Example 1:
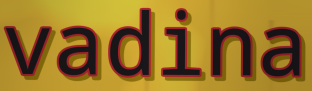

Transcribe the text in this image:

vadina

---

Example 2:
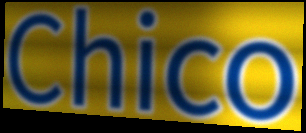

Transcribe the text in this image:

Chico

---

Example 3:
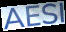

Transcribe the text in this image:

AESI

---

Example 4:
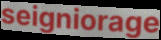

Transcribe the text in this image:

seigniorage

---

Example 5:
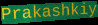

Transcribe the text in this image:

Prakashkiy